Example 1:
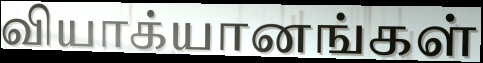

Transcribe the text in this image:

வியாக்யானங்கள்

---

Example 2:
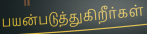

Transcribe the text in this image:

பயன்படுத்துகிறீர்கள்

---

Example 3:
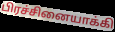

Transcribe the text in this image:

பிரச்சினையாக்கி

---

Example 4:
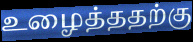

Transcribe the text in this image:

உழைத்ததற்கு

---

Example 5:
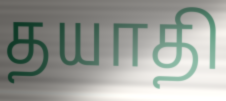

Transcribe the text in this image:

தயாதி